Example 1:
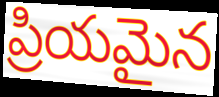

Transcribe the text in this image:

ప్రియమైన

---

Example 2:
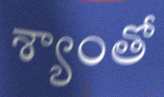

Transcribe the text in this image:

శ్యాంతో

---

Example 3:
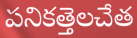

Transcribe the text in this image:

పనికత్తెలచేత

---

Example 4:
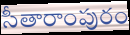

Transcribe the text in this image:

సీతారాంపురం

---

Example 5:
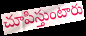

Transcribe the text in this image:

చూపిస్తుంటారు